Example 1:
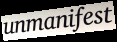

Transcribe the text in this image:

unmanifest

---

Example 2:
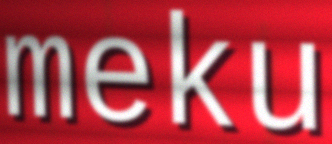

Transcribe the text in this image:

meku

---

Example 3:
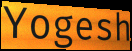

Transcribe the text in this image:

Yogesh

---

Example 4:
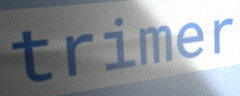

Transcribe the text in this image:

trimer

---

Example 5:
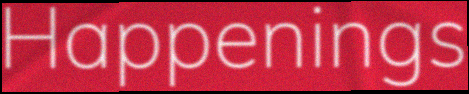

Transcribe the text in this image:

Happenings